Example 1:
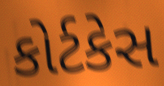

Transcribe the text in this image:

કોર્ટકેસ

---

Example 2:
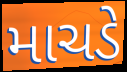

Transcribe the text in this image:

માચડે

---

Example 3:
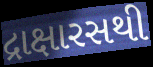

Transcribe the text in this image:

દ્રાક્ષારસથી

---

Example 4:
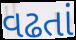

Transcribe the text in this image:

વઢતાં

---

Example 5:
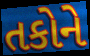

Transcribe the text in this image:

તકોને